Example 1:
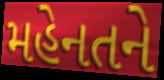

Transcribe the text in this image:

મહેનતને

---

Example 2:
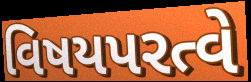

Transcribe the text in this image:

વિષયપરત્વે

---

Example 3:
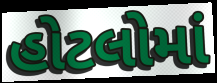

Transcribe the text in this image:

હોટલોમાં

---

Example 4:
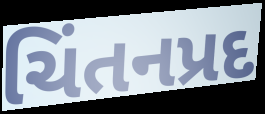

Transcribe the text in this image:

ચિંતનપ્રદ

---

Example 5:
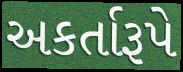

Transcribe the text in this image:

અકર્તારૂપે